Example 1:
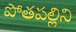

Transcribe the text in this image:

పోతపల్లిని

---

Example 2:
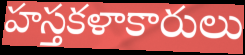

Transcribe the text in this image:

హస్తకళాకారులు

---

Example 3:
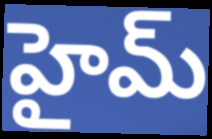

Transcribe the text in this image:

హైమ్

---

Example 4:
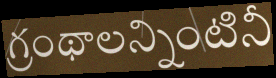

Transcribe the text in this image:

గ్రంథాలన్నింటినీ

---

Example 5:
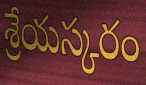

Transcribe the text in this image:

శ్రేయస్కరం